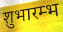
शुभारम्भ